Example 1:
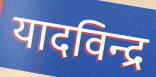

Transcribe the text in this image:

यादविन्द्र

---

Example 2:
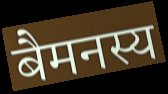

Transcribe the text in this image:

बैमनस्य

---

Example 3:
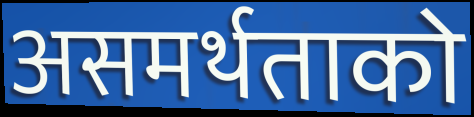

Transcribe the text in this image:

असमर्थताको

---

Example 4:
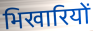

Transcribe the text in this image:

भिखारियों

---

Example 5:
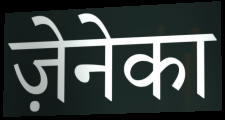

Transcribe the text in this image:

ज़ेनेका